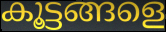
കൂട്ടങ്ങളെ